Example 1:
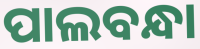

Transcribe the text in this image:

ପାଲବନ୍ଧା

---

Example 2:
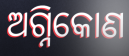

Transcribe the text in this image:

ଅଗ୍ନିକୋଣ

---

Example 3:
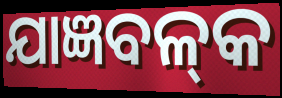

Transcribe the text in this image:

ଯାଜ୍ଞବଳ୍‍କ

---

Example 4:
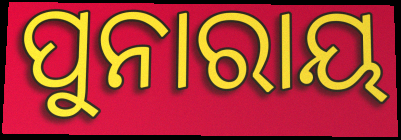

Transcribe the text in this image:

ପୁନାରାୟ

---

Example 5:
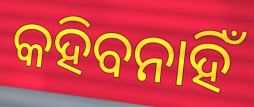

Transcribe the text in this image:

କହିବନାହିଁ